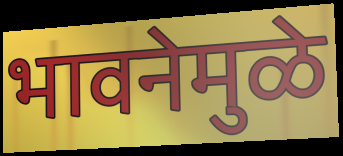
भावनेमुळे